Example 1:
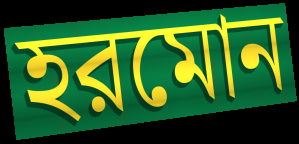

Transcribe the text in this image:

হরমোন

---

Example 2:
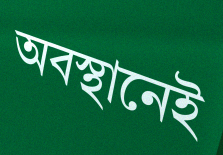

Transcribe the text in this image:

অবস্থানেই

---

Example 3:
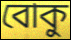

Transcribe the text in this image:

বোকু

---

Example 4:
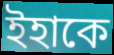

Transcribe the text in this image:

ইহাকে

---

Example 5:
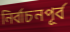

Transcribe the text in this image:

নির্বাচনপূর্ব